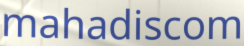
mahadiscom